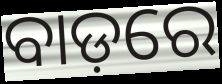
ବାଡ଼ରେ